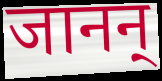
जानन्